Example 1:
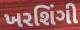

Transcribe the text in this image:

ખરશિંગી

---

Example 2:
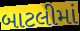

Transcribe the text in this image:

બાટલીમાં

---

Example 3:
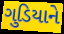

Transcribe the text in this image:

ગુડિયાને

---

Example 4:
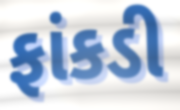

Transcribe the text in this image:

ફાંકડી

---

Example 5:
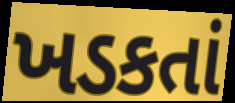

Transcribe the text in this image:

ખડકતાં